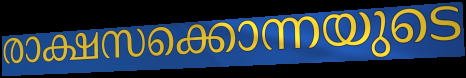
രാക്ഷസക്കൊന്നയുടെ